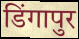
डिंगापुर